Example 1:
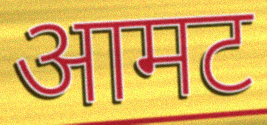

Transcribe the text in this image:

आमट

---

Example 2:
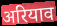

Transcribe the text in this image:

अरियाव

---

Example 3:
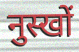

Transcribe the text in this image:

नुस्खों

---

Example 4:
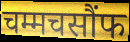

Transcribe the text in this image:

चम्मचसौंफ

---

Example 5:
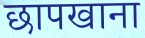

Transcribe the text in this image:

छापखाना